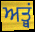
ਅਤ੍ਥਂ